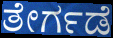
ತೇರ್ಗಡೆ